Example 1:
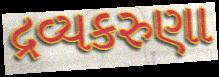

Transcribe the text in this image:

દ્રવ્યકરુણા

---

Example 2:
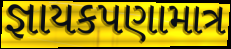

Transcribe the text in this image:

જ્ઞાયકપણામાત્ર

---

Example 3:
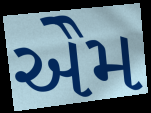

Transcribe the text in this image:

એેમ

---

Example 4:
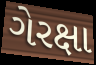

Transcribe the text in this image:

ગેરક્ષા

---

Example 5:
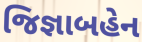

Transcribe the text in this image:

જિજ્ઞાબહેન